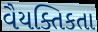
વૈયક્તિકતા